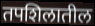
तपशिलातील